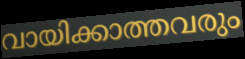
വായിക്കാത്തവരും